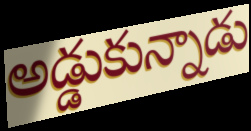
అడ్డుకున్నాడు